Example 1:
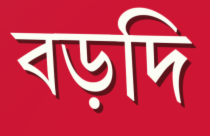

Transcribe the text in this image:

বড়দি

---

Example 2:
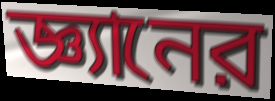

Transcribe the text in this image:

জ্ঞ্যানের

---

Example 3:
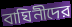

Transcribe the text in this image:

বাঘিনীদের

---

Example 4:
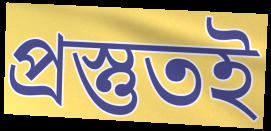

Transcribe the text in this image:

প্রস্তুতই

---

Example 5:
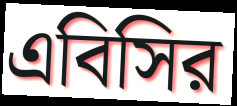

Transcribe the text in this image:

এবিসির